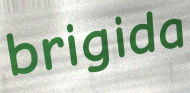
brigida